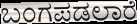
ಬಂಗಪಡಲಾರೆ